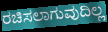
ರಚಿಸಲಾಗುವುದಿಲ್ಲ